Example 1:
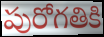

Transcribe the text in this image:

పురోగతికి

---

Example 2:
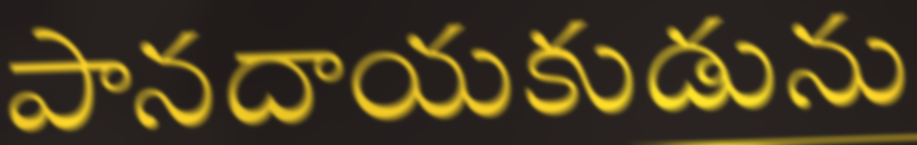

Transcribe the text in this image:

పానదాయకుడును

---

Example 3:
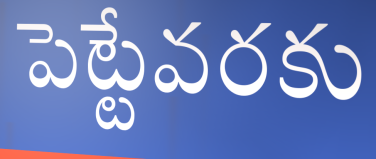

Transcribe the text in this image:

పెట్టేవరకు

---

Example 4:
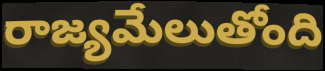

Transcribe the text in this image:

రాజ్యమేలుతోంది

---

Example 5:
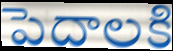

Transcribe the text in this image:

పెదాలకి